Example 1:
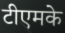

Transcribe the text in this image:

टीएमके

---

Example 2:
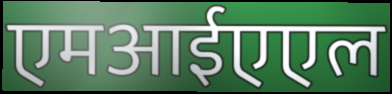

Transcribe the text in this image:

एमआईएएल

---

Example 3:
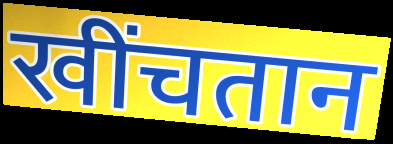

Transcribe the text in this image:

खींचतान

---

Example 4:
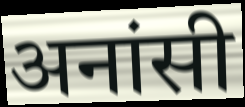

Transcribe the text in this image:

अनांसी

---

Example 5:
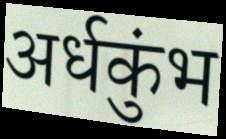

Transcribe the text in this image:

अर्धकुंभ